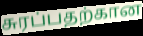
சுரப்பதற்கான